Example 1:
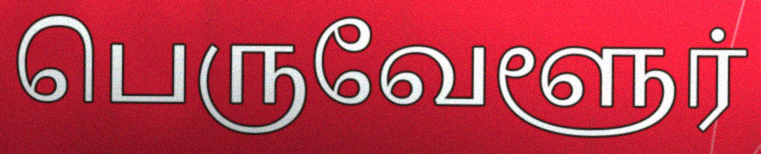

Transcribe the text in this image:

பெருவேளூர்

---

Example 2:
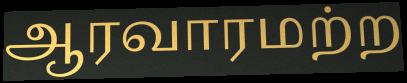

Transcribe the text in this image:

ஆரவாரமற்ற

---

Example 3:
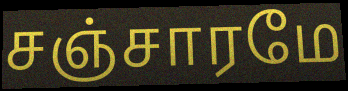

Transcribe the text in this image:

சஞ்சாரமே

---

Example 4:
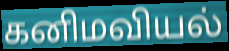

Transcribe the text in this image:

கனிமவியல்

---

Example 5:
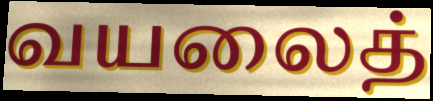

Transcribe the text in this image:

வயலைத்